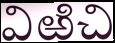
విఱిచి